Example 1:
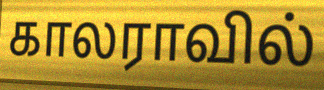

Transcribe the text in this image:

காலராவில்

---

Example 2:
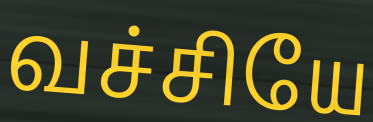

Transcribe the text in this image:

வச்சியே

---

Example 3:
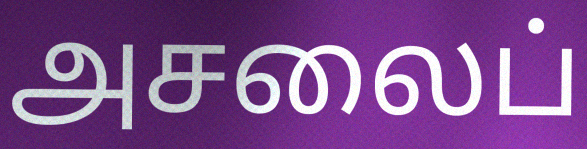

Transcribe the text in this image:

அசலைப்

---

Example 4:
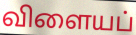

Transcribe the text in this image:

விளையப்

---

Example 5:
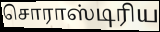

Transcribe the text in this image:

சொராஸ்டிரிய